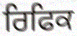
ਰਿਫਿਕ